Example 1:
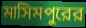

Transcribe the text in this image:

মাসিমপুরের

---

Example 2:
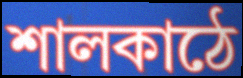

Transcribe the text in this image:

শালকাঠে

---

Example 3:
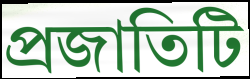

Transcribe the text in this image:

প্রজাতিটি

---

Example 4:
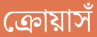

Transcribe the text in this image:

ক্রোয়াসঁ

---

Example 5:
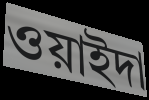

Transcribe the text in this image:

ওয়াইদা